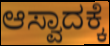
ಆಸ್ವಾದಕ್ಕೆ